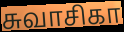
சுவாசிகா